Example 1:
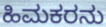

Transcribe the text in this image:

ಹಿಮಕರನು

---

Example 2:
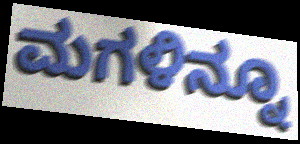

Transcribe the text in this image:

ಮಗಳಿನ್ನೂ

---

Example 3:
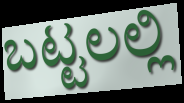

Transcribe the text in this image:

ಬಟ್ಟಲಲ್ಲಿ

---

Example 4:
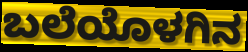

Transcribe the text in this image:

ಬಲೆಯೊಳಗಿನ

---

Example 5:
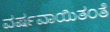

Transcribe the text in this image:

ವರ್ಷವಾಯಿತಂತೆ